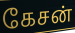
கேசன்